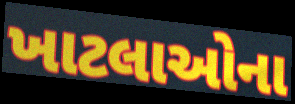
ખાટલાઓના